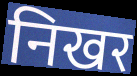
निखर